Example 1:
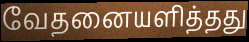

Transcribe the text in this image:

வேதனையளித்தது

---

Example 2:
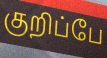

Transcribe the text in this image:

குறிப்பே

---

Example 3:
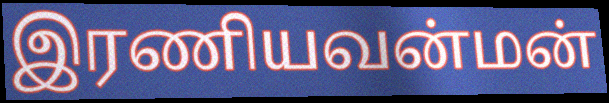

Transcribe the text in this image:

இரணியவன்மன்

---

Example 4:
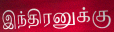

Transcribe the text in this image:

இந்திரனுக்கு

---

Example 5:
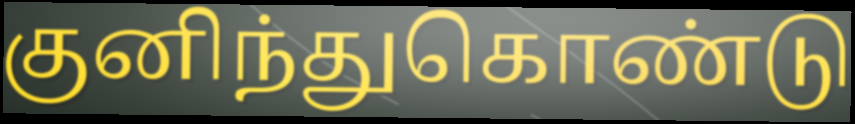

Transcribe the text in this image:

குனிந்துகொண்டு